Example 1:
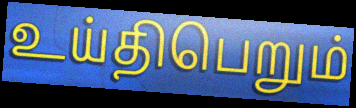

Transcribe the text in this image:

உய்திபெறும்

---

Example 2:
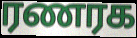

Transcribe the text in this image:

ரணரக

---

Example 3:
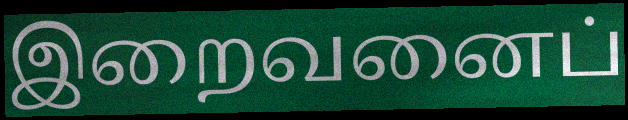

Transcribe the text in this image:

இறைவனைப்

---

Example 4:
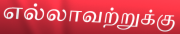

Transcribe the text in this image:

எல்லாவற்றுக்கு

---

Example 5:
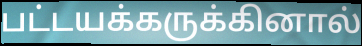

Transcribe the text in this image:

பட்டயக்கருக்கினால்